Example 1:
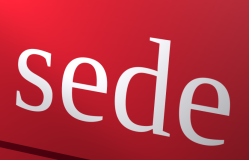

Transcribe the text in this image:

sede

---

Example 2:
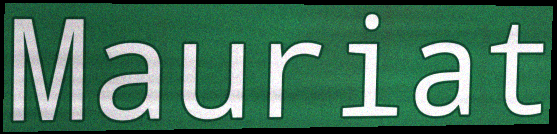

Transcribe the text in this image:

Mauriat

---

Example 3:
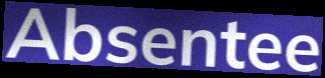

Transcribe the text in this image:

Absentee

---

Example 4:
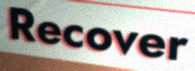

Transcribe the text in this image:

Recover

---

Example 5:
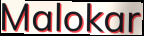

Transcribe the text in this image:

Malokar